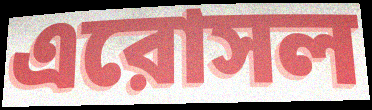
এরোসল